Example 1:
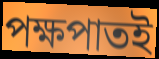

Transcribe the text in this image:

পক্ষপাতই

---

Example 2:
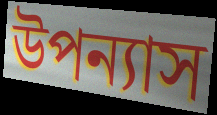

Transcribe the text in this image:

উপন্যাস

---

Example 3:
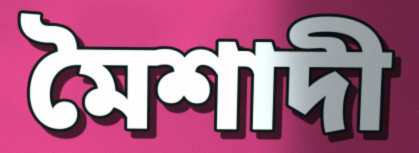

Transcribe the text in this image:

মৈশাদী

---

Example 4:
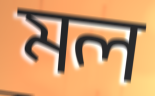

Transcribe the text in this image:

মল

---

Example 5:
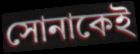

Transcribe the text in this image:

সোনাকেই